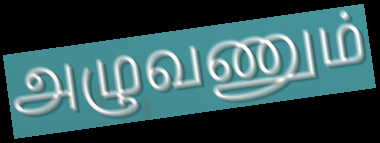
அழுவணும்